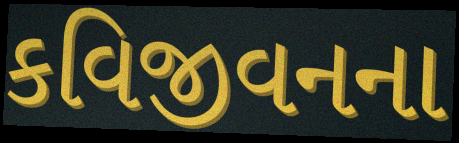
કવિજીવનના